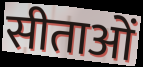
सीताओं